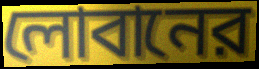
লোবানের